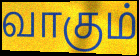
வாகும்